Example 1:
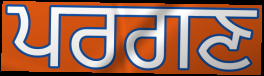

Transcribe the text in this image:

ਪਰਗਣ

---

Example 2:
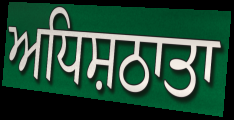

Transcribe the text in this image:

ਅਧਿਸ਼ਠਾਤਾ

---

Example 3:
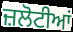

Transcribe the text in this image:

ਜ਼ਲੋਟੀਆਂ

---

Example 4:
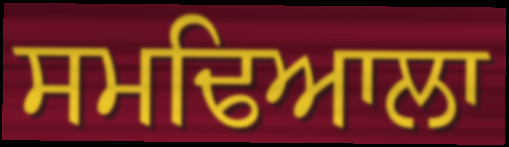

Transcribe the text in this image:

ਸਮਢਿਆਲਾ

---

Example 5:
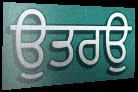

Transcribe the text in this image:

ਉਤਰਉ